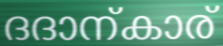
ദദാന്കാര്